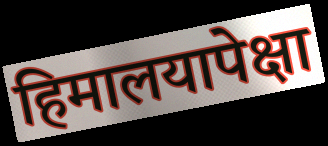
हिमालयापेक्षा